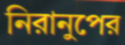
নিরানুপের